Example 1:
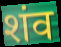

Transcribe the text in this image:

शंव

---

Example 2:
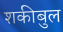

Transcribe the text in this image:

शकीबुल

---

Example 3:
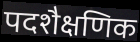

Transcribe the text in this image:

पदशैक्षणिक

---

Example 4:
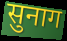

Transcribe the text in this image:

सुनाग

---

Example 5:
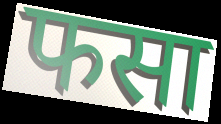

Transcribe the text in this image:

फसा